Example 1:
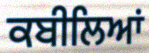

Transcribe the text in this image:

ਕਬੀਲਿਆਂ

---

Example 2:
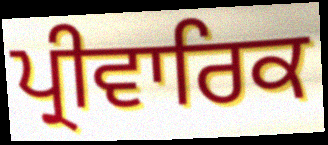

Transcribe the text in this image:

ਪ੍ਰੀਵਾਰਿਕ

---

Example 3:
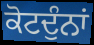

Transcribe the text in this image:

ਕੋਟਦੁੰਨਾਂ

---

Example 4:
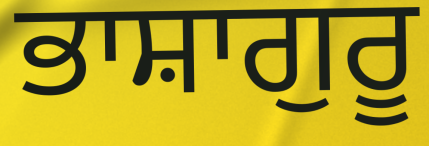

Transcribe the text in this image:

ਭਾਸ਼ਾਗੁਰੂ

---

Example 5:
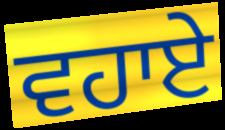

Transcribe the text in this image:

ਵਹਾਏ